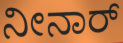
ನೀನಾರ್